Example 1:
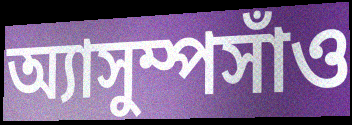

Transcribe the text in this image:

অ্যাসুম্পসাঁও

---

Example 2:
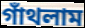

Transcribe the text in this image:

গাঁথলাম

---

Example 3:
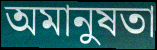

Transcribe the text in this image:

অমানুষতা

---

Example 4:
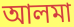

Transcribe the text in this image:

আলমা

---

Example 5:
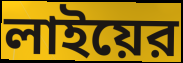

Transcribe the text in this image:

লাইয়ের